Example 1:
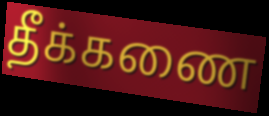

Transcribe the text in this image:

தீக்கணை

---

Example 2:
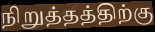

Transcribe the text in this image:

நிறுத்தத்திற்கு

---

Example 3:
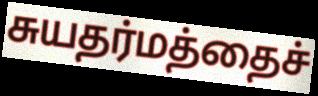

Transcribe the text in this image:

சுயதர்மத்தைச்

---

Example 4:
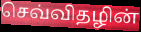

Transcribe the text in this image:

செவ்விதழின்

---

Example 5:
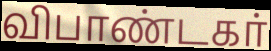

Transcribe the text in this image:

விபாண்டகர்